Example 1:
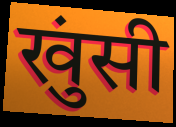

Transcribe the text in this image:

खुंसी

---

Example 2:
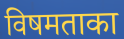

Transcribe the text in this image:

विषमताका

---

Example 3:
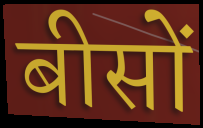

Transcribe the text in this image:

बीसों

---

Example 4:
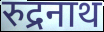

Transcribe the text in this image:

रुद्रनाथ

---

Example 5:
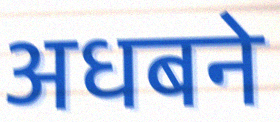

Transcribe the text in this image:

अधबने